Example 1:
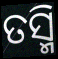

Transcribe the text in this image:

ତସ୍ମି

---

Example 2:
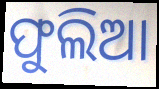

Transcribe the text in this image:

ଫୁଲିଆ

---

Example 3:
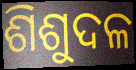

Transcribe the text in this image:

ଶିଶୁଦଳ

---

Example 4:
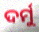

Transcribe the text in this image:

ଦର୍ମୁ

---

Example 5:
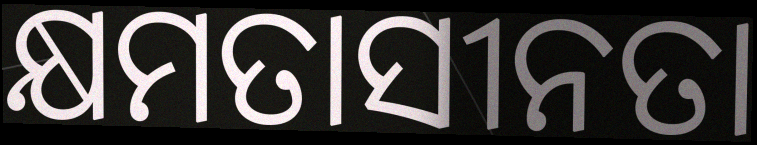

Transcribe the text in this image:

କ୍ଷମତାସୀନତା